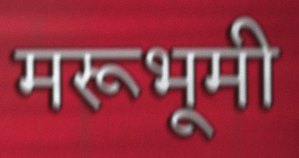
मरूभूमी